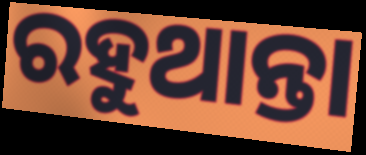
ରହୁଥାନ୍ତା